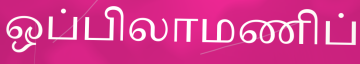
ஒப்பிலாமணிப்